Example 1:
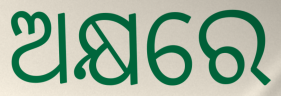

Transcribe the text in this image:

ଅକ୍ଷରେ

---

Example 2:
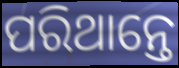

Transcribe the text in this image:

ପରିଥାନ୍ତେ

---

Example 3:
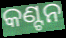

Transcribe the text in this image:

କଣ୍ଟନ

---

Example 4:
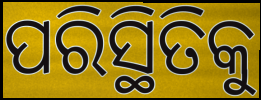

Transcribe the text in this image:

ପରିସ୍ଥିତିକୁ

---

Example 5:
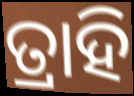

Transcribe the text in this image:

ତ୍ରାହି